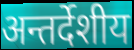
अन्तर्देशीय